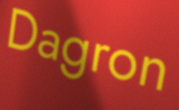
Dagron